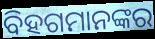
ବିହଗମାନଙ୍କର